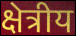
क्षेत्रीय